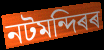
নটমন্দিৰৰ